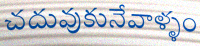
చదువుకునేవాళ్ళం